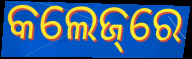
କଲେଜ୍‌ରେ